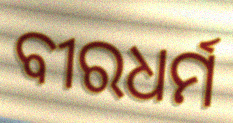
ବୀରଧର୍ମ